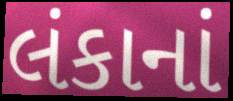
લંકાનાં